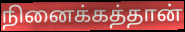
நினைக்கத்தான்